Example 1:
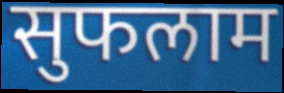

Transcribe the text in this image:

सुफलाम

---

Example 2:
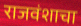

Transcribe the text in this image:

राजवंशाचा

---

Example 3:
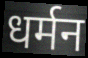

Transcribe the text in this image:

धर्मन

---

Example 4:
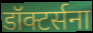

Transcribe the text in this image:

डॉक्टर्सना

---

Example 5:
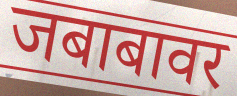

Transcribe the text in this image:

जबाबावर